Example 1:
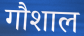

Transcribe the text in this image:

गौशाल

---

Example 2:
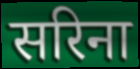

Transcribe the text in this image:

सरिना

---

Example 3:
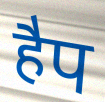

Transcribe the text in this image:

हैप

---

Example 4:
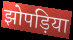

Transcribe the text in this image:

झोपड़िया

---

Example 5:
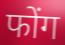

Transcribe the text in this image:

फोंग